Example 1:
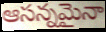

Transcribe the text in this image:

ఆసన్నమైనా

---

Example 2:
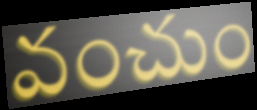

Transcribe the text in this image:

వంచుం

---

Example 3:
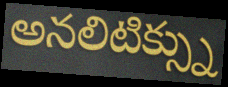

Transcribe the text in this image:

అనలిటిక్స్ను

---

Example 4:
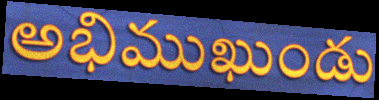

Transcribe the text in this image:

అభిముఖుండు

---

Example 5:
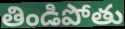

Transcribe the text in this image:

తిండిపోతు